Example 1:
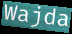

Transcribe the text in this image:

Wajda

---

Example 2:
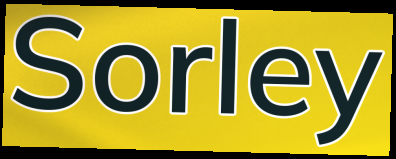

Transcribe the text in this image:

Sorley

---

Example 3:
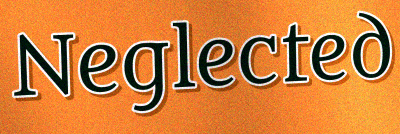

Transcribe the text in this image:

Neglected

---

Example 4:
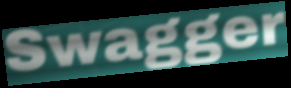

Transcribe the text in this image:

Swagger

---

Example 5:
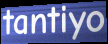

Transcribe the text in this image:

tantiyo